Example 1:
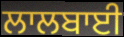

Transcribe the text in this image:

ਲਾਲਬਾਈ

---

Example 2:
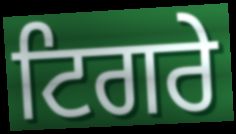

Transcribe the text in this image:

ਟਿਗਰੇ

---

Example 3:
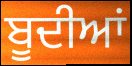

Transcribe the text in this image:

ਬੂਦੀਆਂ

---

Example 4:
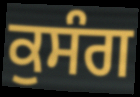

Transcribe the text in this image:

ਕੁਸੰਗ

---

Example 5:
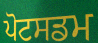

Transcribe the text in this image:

ਪੋਟਸਡਮ